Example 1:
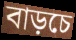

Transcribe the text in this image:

বাড়চে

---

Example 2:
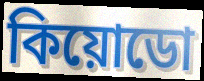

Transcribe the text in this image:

কিয়োডো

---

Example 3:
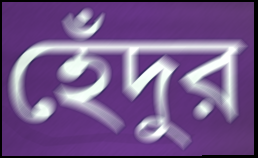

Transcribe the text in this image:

হেঁদুর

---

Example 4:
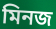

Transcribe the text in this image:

মিনজ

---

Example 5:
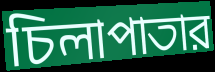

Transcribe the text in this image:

চিলাপাতার